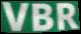
VBR